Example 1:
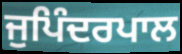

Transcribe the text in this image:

ਜੁਪਿੰਦਰਪਾਲ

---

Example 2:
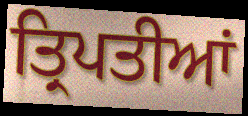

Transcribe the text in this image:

ਤ੍ਰਿਪਤੀਆਂ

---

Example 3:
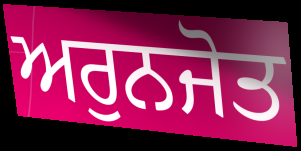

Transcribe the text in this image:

ਅਰੁਨਜੋਤ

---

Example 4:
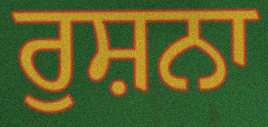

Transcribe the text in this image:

ਰੁਸ਼ਨਾ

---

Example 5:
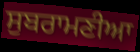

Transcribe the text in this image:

ਸੁਬਰਾਮਣੀਆ